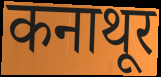
कनाथूर